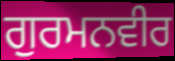
ਗੁਰਮਨਵੀਰ